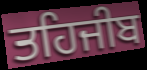
ਤਹਿਜੀਬ